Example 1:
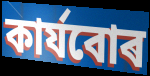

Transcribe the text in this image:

কাৰ্যবোৰ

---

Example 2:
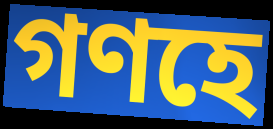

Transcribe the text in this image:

গণহে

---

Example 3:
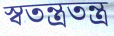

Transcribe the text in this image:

স্বতন্ত্ৰতন্ত্ৰ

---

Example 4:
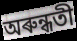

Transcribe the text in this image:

অৰুন্ধতী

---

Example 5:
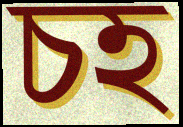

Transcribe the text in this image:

চহ